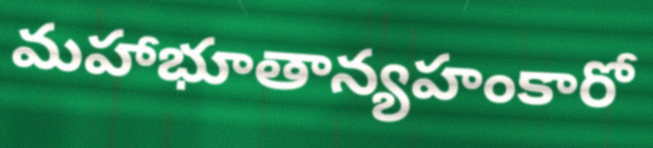
మహాభూతాన్యహంకారో